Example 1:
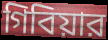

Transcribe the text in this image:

গিবিয়ার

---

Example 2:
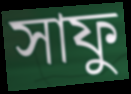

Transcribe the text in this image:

সাফু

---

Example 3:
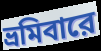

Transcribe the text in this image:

ভ্রমিবারে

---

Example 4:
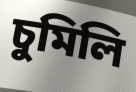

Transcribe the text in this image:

চুমিলি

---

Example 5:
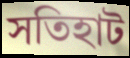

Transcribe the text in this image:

সতিহাট